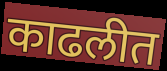
काढलीत